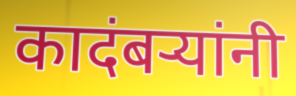
कादंबऱ्यांनी